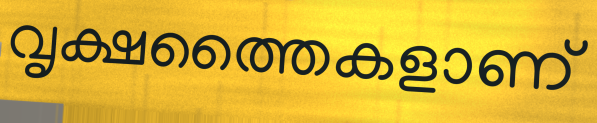
വൃക്ഷത്തൈകളാണ്